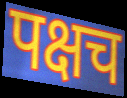
पक्षच